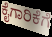
ಕೈಗಾರಿಕೆಗೆ